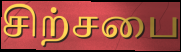
சிற்சபை